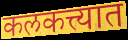
कलकत्त्यात